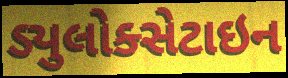
ડ્યુલોક્સેટાઇન